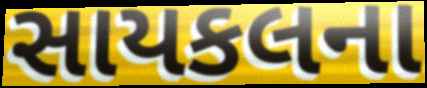
સાયકલના